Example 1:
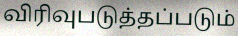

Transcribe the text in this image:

விரிவுபடுத்தப்படும்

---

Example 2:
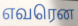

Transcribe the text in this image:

எவரென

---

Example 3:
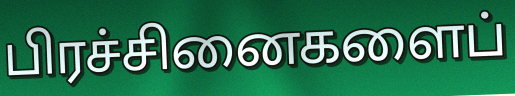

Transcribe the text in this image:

பிரச்சினைகளைப்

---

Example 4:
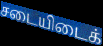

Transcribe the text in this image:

சடையிடைக்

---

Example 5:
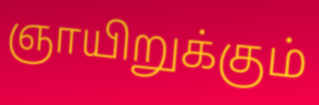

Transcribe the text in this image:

ஞாயிறுக்கும்